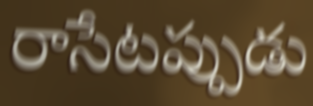
రాసేటప్పుడు